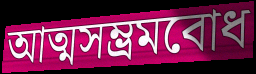
আত্মসম্ভ্রমবোধ